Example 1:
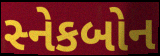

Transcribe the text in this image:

સ્નેકબોન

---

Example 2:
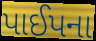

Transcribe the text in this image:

પાઈપના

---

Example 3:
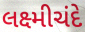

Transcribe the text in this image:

લક્ષ્મીચંદે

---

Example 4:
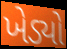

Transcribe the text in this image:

ખેડ્યો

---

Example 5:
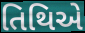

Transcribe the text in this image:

તિથિએ